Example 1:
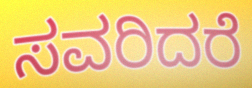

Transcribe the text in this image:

ಸವರಿದರೆ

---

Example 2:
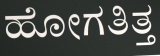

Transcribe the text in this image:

ಹೋಗತಿತ್ತ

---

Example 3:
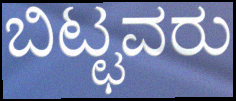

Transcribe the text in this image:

ಬಿಟ್ಟವರು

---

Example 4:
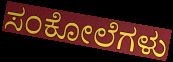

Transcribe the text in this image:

ಸಂಕೋಲೆಗಳು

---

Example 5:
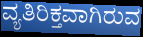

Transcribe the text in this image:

ವ್ಯತಿರಿಕ್ತವಾಗಿರುವ